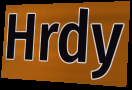
Hrdy